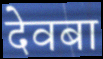
देवबा